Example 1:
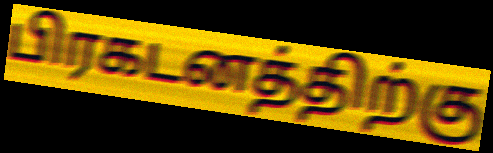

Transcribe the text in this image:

பிரகடனத்திற்கு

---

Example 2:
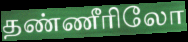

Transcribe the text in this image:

தண்ணீரிலோ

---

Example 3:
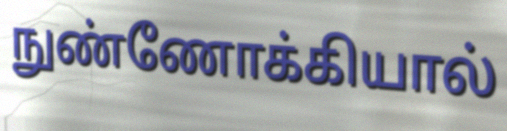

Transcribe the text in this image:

நுண்ணோக்கியால்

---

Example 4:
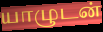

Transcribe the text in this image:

யாழுடன்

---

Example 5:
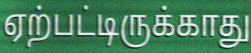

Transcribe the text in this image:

ஏற்பட்டிருக்காது